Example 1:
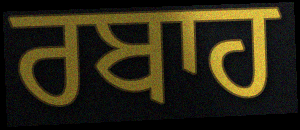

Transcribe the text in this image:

ਰਬਾਹ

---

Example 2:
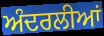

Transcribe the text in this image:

ਅੰਦਰਲੀਆਂ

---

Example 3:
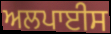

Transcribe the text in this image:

ਅਲਪਾਈਸ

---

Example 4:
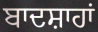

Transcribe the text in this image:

ਬਾਦਸ਼ਾਹਾਂ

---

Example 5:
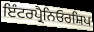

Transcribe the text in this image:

ਇੰਟਰਪ੍ਰੈਨਿਓਰਸ਼ਿਪ